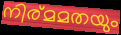
നിര്മമതയും